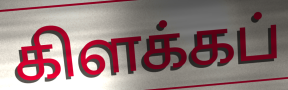
கிளக்கப்